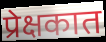
प्रेक्षकात